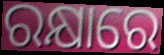
ରକ୍ଷାରେ